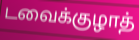
டவைக்குழாத்